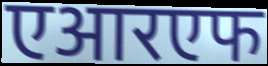
एआरएफ